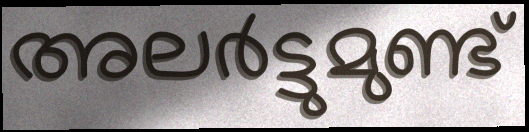
അലർട്ടുമുണ്ട്